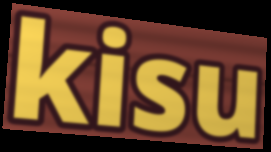
kisu